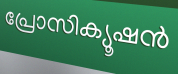
പ്രോസിക്യൂഷൻ